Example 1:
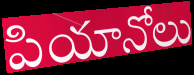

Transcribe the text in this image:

పియానోలు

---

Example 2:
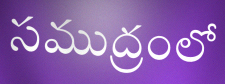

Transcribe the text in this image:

సముద్రంలో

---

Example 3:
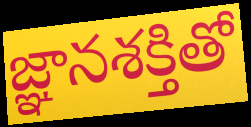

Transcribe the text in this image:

జ్ఞానశక్తితో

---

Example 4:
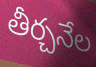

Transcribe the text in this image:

తీర్చనేల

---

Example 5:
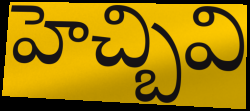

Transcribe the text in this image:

హెచ్బివి